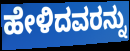
ಹೇಳಿದವರನ್ನು